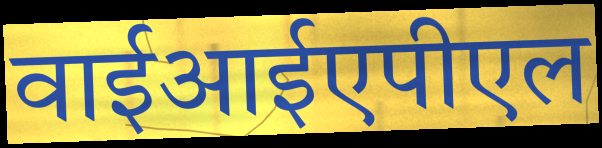
वाईआईएपीएल